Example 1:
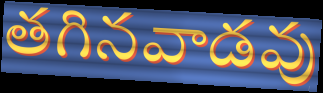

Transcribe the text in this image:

తగినవాడవు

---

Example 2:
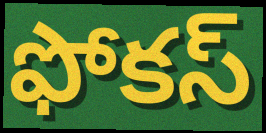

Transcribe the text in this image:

ఫోకస్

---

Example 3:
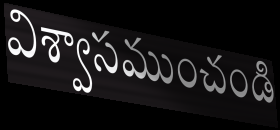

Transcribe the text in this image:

విశ్వాసముంచండి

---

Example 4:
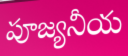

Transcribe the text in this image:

పూజ్యనీయ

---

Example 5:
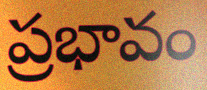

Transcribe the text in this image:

ప్రభావం